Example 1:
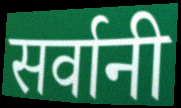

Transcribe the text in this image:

सर्वानी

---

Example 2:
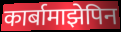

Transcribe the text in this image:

कार्बामाझेपिन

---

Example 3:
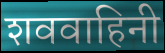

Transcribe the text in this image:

शववाहिनी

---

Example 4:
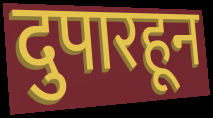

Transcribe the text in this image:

दुपारहून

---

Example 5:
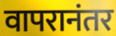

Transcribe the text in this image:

वापरानंतर